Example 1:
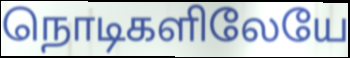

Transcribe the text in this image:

நொடிகளிலேயே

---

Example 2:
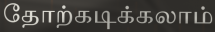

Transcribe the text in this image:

தோற்கடிக்கலாம்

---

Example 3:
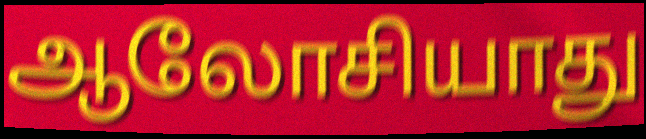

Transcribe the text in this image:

ஆலோசியாது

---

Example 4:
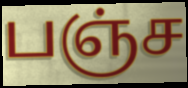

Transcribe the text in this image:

பஞ்ச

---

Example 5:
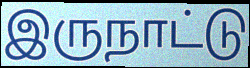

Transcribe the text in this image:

இருநாட்டு